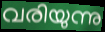
വരിയുന്നു